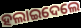
ହଲାଇଦେଲେ